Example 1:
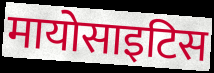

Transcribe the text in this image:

मायोसाइटिस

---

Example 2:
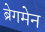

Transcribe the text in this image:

ब्रेगमेन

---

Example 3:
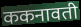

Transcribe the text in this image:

ककनावती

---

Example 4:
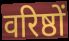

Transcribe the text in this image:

वरिष्ठों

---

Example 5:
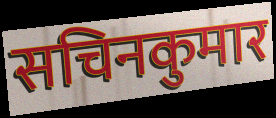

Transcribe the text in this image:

सचिनकुमार